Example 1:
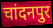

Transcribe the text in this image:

चांदनपुर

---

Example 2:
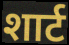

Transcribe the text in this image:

शार्ट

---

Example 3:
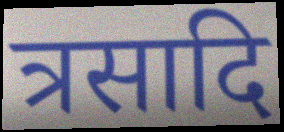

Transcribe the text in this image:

त्रसादि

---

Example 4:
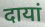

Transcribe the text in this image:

दायां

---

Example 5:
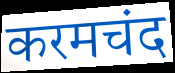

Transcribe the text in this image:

करमचंद